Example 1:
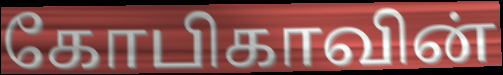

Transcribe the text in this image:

கோபிகாவின்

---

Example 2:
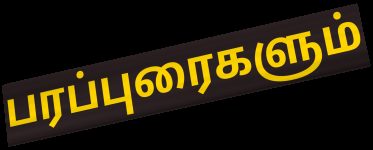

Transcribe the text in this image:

பரப்புரைகளும்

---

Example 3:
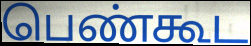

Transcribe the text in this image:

பெண்கூட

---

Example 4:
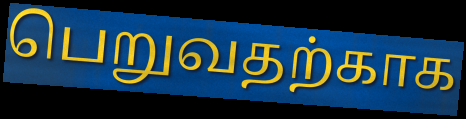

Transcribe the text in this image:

பெறுவதற்காக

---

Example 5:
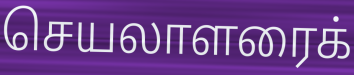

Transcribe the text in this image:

செயலாளரைக்